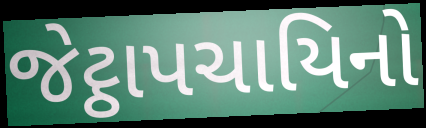
જેટ્ઠાપચાયિનો